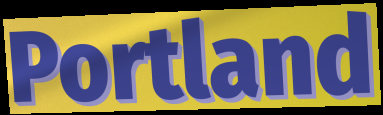
Portland